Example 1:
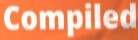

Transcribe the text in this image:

Compiled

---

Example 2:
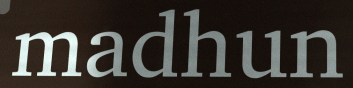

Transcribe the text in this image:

madhun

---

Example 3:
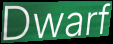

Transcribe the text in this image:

Dwarf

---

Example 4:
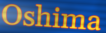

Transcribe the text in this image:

Oshima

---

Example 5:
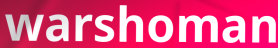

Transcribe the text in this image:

warshoman